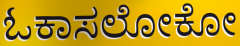
ಓಕಾಸಲೋಕೋ